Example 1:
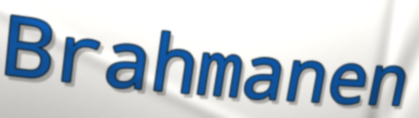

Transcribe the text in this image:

Brahmanen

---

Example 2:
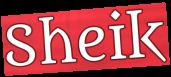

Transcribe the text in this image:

Sheik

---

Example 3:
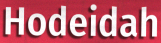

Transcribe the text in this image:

Hodeidah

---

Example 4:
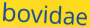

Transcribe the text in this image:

bovidae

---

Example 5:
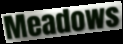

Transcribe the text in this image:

Meadows